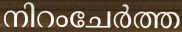
നിറംചേർത്ത